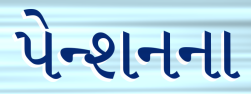
પેન્શનના